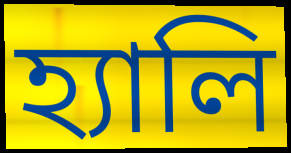
হ্যালি